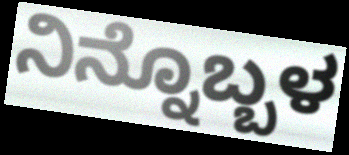
ನಿನ್ನೊಬ್ಬಳ